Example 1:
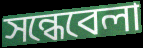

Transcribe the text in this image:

সন্ধেবেলা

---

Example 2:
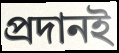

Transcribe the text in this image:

প্রদানই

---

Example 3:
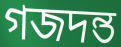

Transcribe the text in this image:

গজদন্ত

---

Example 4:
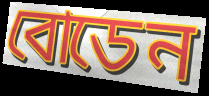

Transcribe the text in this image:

বোডেন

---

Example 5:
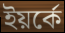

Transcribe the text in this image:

ইয়র্কে